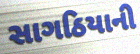
સાગઠિયાની